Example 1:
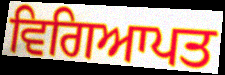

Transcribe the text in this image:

ਵਿਗਿਆਪਤ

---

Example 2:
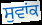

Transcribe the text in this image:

ਸੁਵਾਂਕ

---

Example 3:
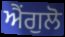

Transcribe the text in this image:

ਐਂਗੁਲੋ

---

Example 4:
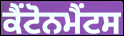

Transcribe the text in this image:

ਕੈਂਟੋਨਮੈਂਟਸ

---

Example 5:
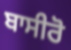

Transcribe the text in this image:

ਬਾਸੀਰੋ